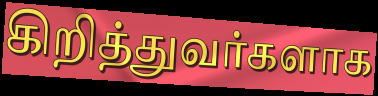
கிறித்துவர்களாக